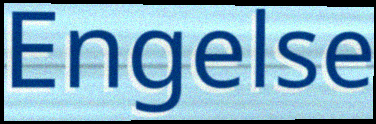
Engelse